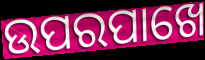
ଉପରପାଖେ